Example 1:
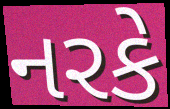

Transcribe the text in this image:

નરકે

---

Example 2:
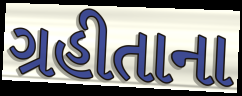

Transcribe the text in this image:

ગ્રહીતાના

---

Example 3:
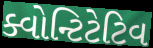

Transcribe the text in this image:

ક્વોન્ટિટેટિવ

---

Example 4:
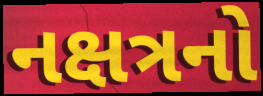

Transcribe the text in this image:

નક્ષત્રનો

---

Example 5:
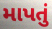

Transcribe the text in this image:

માપતું